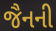
જૈનની